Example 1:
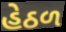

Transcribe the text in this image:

હેઠળ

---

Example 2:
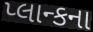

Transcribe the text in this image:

પ્લાન્કના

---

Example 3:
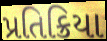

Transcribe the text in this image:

પ્રતિક્રિયા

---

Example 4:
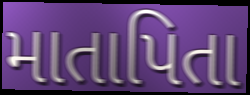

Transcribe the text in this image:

માતાપિતા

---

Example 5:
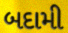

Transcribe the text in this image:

બદામી